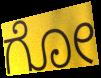
ಗೋ